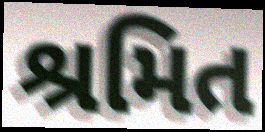
શ્રમિત